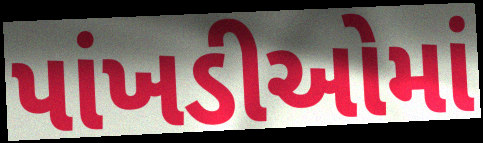
પાંખડીઓમાં